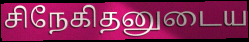
சிநேகிதனுடைய